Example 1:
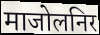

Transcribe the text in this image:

माजोलनिर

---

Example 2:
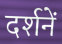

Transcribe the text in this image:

दर्शनें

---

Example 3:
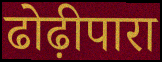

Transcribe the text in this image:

ढोढ़ीपारा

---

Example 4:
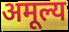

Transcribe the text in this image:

अमूल्य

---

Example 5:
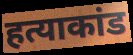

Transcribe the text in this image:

हत्याकांड